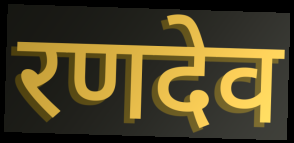
रणदेव